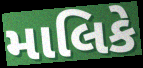
માલિકે